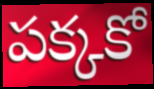
పక్కకో